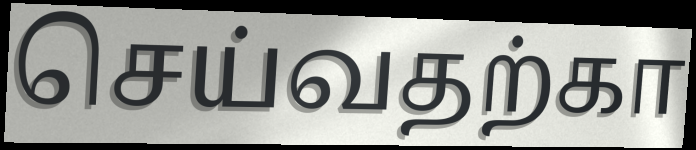
செய்வதற்கா